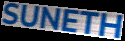
SUNETH